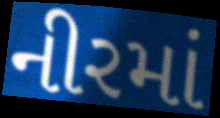
નીરમાં